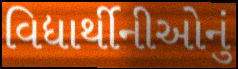
વિદ્યાર્થીનીઓનું